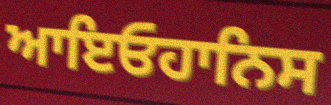
ਆਇਓਹਾਨਿਸ